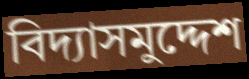
বিদ্যাসমুদ্দেশ